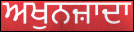
ਅਖੁਨਜ਼ਾਦਾ